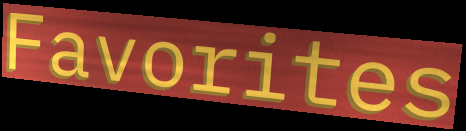
Favorites